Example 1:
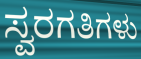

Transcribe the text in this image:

ಸ್ವರಗತಿಗಳು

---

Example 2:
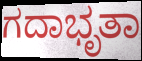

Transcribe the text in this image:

ಗದಾಭೃತಾ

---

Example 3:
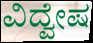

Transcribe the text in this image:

ವಿದ್ವೇಷ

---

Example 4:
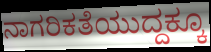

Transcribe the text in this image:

ನಾಗರಿಕತೆಯುದ್ದಕ್ಕೂ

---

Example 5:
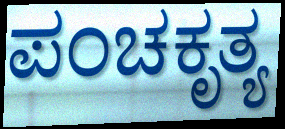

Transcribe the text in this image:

ಪಂಚಕೃತ್ಯ